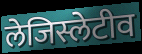
लेजिस्लेटीव